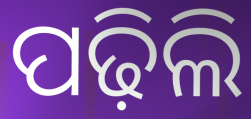
ପଢ଼ିଲି